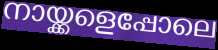
നായ്ക്കളെപ്പോലെ